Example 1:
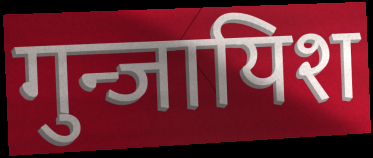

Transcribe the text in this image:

गुन्जायिश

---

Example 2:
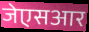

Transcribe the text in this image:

जेएसआर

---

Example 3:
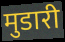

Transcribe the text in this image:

मुडारी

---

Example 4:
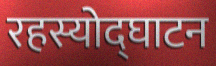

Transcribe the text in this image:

रहस्योद्घाटन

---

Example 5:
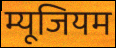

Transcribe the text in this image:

म्यूजियम